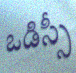
ఒడిస్సీ